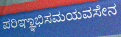
ಪರಿಞ್ಞಾಭಿಸಮಯವಸೇನ